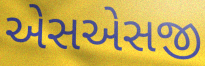
એસએસજી